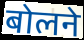
बोलने